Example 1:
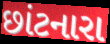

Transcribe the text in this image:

છાંટનારા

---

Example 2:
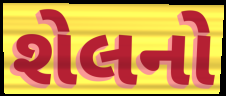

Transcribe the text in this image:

શેલનો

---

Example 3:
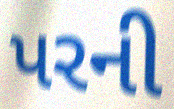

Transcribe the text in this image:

પરની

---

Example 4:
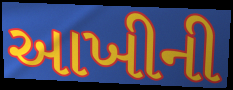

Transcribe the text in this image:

આખીની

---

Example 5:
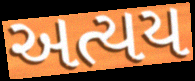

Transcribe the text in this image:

અત્યય